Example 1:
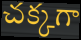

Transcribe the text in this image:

చక్కగా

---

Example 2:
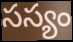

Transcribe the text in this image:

సస్యం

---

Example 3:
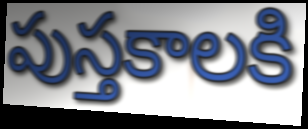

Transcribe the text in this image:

పుస్తకాలకి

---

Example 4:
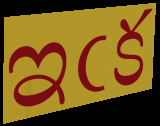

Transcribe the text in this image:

ఇఁక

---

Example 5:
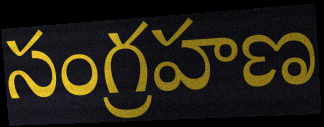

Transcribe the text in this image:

సంగ్రహణ